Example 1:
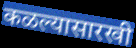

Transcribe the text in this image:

कळल्यासारखी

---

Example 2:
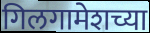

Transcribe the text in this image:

गिलगामेशच्या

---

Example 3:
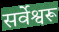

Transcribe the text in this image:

सर्वेश्वरू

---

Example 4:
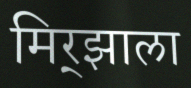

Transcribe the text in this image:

मिर्झाला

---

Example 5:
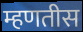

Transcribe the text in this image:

म्हणतीस